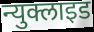
न्युक्लाइड